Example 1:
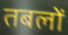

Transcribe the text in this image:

तबलों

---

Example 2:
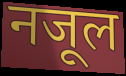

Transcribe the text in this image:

नजूल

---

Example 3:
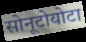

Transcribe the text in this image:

सोनूटोयोटा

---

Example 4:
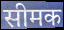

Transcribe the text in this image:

सीमक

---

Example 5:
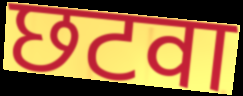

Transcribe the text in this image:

छटवा